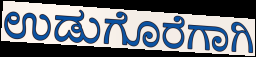
ಉಡುಗೊರೆಗಾಗಿ